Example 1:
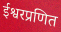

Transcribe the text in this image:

ईश्वरप्रणित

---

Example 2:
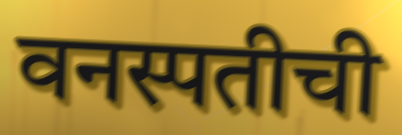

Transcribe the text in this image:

वनस्पतीची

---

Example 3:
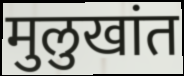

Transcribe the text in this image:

मुलुखांत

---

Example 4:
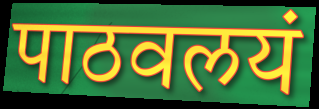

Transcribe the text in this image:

पाठवलयं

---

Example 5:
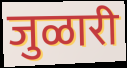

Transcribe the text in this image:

जुळारी